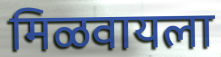
मिळवायला